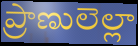
ప్రాణులెల్లా